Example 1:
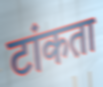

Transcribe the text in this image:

टांकता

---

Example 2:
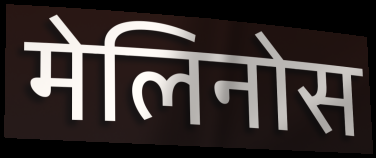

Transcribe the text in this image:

मेलिनोस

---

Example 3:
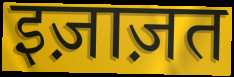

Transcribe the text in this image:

इज़ाज़त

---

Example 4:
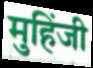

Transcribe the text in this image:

मुहिंजी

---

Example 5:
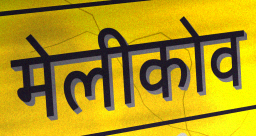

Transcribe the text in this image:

मेलीकोव